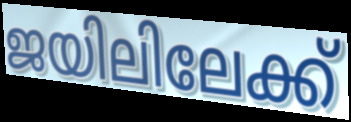
ജയിലിലേക്ക്